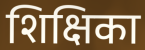
शिक्षिका